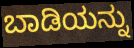
ಬಾಡಿಯನ್ನು